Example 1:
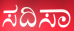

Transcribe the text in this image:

ಸದಿಸಾ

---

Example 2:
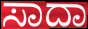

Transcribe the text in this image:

ಸಾದಾ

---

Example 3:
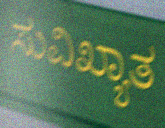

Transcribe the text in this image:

ಸುವಿಖ್ಯಾತ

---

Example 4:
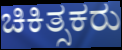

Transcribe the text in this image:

ಚಿಕಿತ್ಸಕರು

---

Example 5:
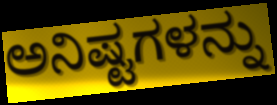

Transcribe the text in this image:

ಅನಿಷ್ಟಗಳನ್ನು